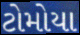
ટોમોયા